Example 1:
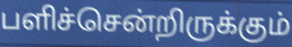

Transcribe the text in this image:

பளிச்சென்றிருக்கும்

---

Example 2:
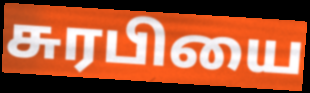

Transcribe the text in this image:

சுரபியை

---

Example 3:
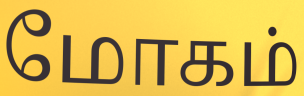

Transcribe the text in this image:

மோகம்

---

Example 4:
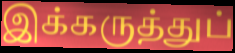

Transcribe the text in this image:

இக்கருத்துப்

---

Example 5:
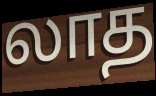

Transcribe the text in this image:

லாத